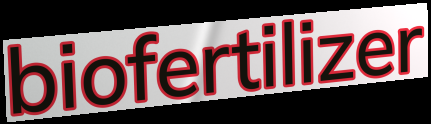
biofertilizer